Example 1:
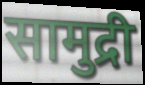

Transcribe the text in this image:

सामुद्री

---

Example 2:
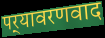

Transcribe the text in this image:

पर्यावरणवाद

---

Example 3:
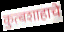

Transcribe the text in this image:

कुत्बशाहाचे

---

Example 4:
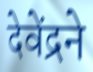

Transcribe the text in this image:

देवेंद्रने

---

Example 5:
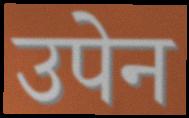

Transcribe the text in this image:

उपेन